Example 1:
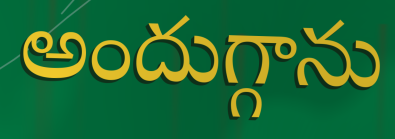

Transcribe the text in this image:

అందుగ్గాను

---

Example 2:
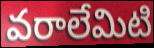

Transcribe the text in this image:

వరాలేమిటి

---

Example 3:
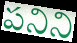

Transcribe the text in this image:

పనిని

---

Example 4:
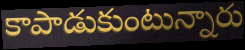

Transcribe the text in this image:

కాపాడుకుంటున్నారు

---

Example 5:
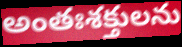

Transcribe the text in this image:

అంతఃశక్తులను